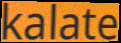
kalate